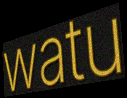
watu